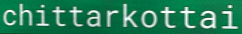
chittarkottai